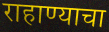
राहाण्याचा